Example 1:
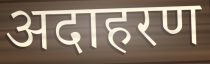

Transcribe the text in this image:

अदाहरण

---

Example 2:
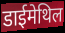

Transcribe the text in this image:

डाईमेथिल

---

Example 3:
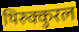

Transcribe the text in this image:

थिरुक्कुरल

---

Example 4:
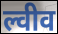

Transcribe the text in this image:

ल्वीव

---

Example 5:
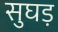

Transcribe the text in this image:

सुघड़